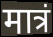
मात्रं